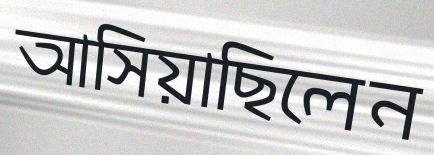
আসিয়াছিলেন